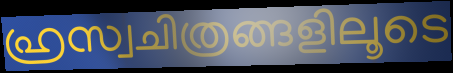
ഹ്രസ്വചിത്രങ്ങളിലൂടെ